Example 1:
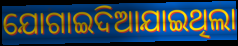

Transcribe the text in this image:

ଯୋଗାଇଦିଆଯାଇଥିଲା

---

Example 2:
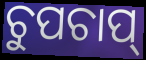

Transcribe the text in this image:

ଚୁପଚାପ୍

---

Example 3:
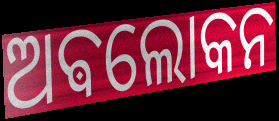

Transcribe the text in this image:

ଅଵଲୋକନ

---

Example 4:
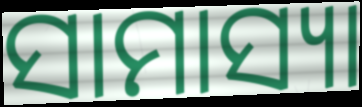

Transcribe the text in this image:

ସାମାସ୍ୟା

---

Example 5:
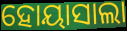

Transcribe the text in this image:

ହୋୟାସାଲା